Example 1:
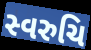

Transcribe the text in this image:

સ્વરુચિ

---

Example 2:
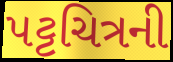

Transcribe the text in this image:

પટ્ટચિત્રની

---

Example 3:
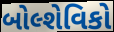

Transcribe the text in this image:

બોલ્શેવિકો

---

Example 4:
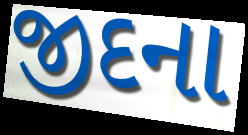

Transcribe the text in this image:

જીદના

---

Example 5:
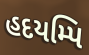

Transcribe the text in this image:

હદયમ્પિ